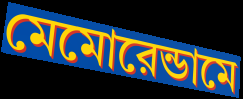
মেমোরেন্ডামে